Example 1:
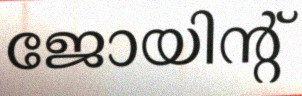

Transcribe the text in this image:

ജോയിന്റ്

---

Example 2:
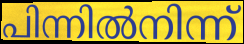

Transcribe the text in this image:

പിന്നിൽനിന്ന്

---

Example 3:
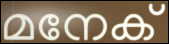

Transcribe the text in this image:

മനേക്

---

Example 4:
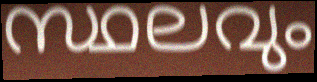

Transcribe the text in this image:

സ്ഥലവും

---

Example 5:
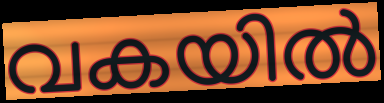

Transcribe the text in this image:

വകയിൽ